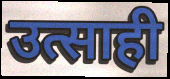
उत्साही